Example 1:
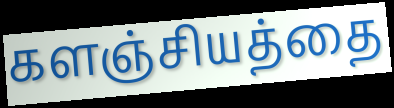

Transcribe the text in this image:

களஞ்சியத்தை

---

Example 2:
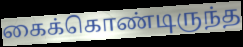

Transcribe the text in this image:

கைக்கொண்டிருந்த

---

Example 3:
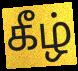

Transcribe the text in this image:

கீழ்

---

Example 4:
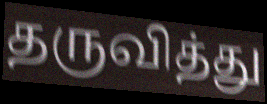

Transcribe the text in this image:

தருவித்து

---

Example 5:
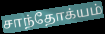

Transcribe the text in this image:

சாந்தோக்யம்